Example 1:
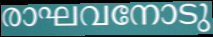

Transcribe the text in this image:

രാഘവനോടു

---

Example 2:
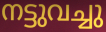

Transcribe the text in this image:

നട്ടുവച്ചു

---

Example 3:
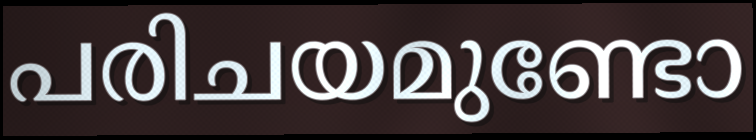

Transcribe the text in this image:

പരിചയമുണ്ടോ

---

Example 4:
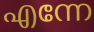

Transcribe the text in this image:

എന്നേ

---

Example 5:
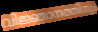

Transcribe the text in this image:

വിജ്ഞാനത്തിനും